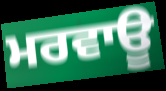
ਮਰਵਾਊ